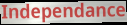
Independance